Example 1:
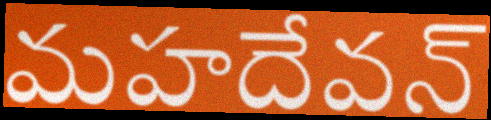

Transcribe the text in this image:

మహదేవన్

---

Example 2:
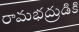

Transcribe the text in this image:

రామభద్రుడికి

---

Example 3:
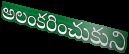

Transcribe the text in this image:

అలంకరించుకుని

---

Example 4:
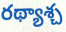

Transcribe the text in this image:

రథ్యాశ్చ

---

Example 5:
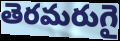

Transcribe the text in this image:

తెరమరుగై